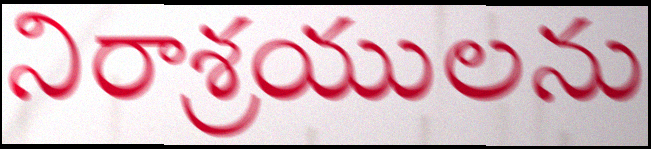
నిరాశ్రయులను